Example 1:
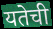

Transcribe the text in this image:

यतेची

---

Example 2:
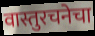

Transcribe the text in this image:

वास्तुरचनेचा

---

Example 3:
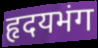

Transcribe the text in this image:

हृदयभंग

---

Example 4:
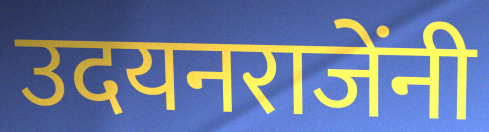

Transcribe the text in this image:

उदयनराजेंनी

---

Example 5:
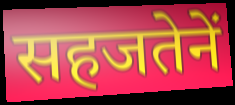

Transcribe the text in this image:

सहजतेनें